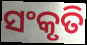
ସଂକୃତି